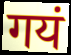
गयं